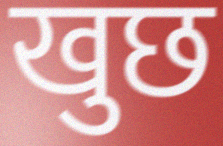
खुछ